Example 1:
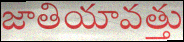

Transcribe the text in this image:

జాతియావత్తు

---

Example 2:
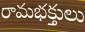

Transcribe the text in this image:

రామభక్తులు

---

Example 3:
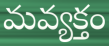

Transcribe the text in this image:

మవ్యక్తం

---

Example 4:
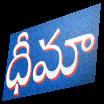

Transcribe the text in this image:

ధీమా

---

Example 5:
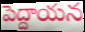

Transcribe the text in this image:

పెద్దాయన